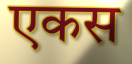
एकस